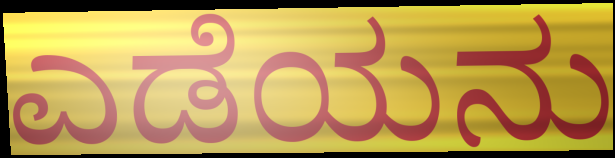
ಎಡೆಯನು